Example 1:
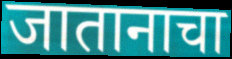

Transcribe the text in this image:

जातानाचा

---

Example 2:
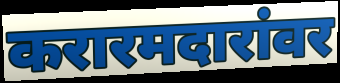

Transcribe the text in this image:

करारमदारांवर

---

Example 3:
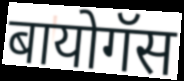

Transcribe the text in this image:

बायोगॅस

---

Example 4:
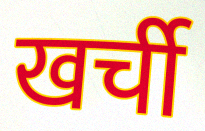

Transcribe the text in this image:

खर्ची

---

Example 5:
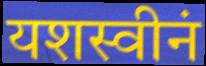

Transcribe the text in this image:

यशस्वीनं